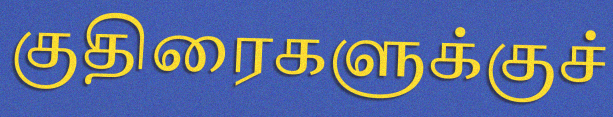
குதிரைகளுக்குச்